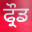
ਫ੍ਰੌਡ